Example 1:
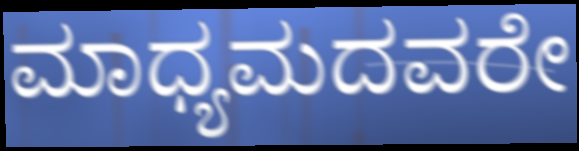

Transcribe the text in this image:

ಮಾಧ್ಯಮದವರೇ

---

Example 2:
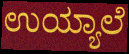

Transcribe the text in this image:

ಉಯ್ಯಾಲೆ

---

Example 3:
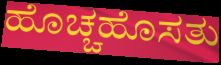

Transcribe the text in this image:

ಹೊಚ್ಚಹೊಸತು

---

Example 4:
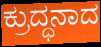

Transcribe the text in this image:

ಕ್ರುದ್ಧನಾದ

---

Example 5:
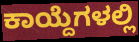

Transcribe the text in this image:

ಕಾಯ್ದೆಗಳಲ್ಲಿ